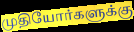
முதியோர்களுக்கு